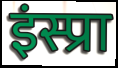
इंस्प्रा